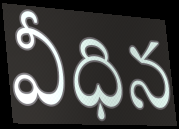
వీధిన